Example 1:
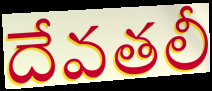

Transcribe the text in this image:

దేవతలీ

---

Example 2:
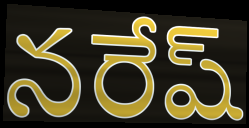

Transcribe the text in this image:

నరేష్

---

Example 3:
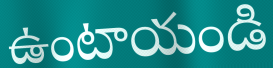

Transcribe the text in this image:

ఉంటాయండి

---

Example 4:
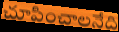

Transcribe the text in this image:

చూపించాలనేది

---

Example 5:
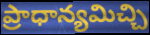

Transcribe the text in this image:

ప్రాధాన్యమిచ్చి